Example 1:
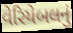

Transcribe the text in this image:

વેરિયેબલનું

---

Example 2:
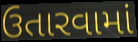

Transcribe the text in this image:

ઉતારવામાં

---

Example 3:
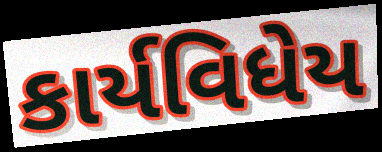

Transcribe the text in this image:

કાર્યવિધેય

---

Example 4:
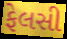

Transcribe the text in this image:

ફેલસી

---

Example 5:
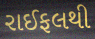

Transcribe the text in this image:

રાઈફલથી